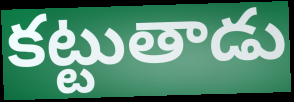
కట్టుతాడు